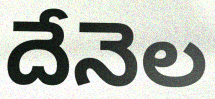
దేనెల